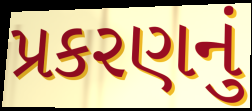
પ્રકરણનું